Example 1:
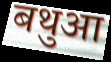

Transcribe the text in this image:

बथुआ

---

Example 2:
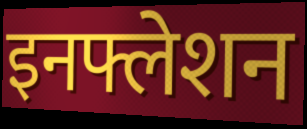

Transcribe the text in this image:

इनफ्लेशन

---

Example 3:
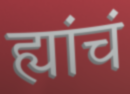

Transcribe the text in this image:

ह्यांचं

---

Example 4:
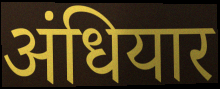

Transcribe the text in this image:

अंधियार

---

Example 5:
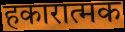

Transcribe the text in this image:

हकारात्मक